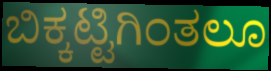
ಬಿಕ್ಕಟ್ಟಿಗಿಂತಲೂ